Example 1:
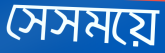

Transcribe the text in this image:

সেসময়ে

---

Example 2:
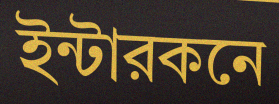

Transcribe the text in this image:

ইন্টারকনে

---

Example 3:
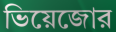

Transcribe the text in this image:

ভিয়েজোর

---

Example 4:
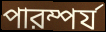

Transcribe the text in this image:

পারম্পর্য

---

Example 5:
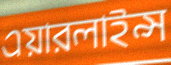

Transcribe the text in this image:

এয়ারলাইন্স